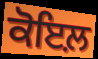
ਕੋਇਲ਼